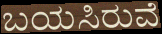
ಬಯಸಿರುವೆ